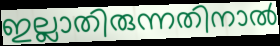
ഇല്ലാതിരുന്നതിനാൽ